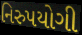
નિરુપયોગી